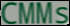
CMMs